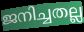
ജനിച്ചതല്ല